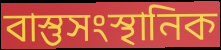
বাস্তুসংস্থানিক